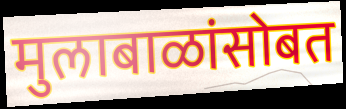
मुलाबाळांसोबत